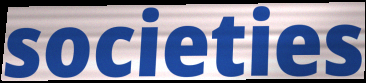
societies